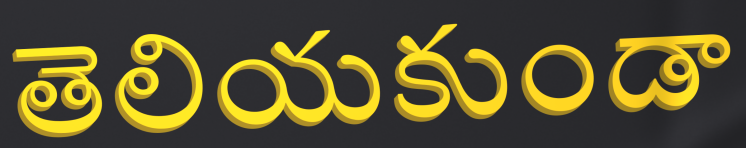
తెలియకుండా